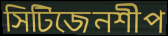
সিটিজেনশীপ